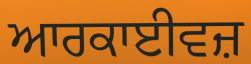
ਆਰਕਾਈਵਜ਼